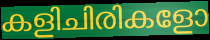
കളിചിരികളോ